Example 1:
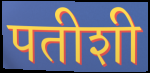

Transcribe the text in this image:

पतीशी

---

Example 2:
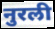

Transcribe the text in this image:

नुरली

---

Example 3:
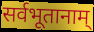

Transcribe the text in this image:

सर्वभूतानाम्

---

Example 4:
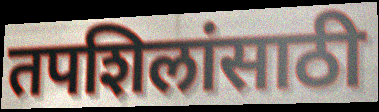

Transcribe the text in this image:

तपशिलांसाठी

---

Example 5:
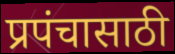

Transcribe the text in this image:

प्रपंचासाठी